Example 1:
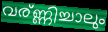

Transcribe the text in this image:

വര്ണ്ണിച്ചാലും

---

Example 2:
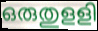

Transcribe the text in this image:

ഒരുതുളളി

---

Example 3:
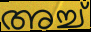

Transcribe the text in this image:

അച്ച്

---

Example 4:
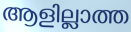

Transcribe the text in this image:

ആളില്ലാത്ത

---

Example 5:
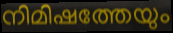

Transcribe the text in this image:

നിമിഷത്തേയും